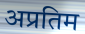
अप्रतिम